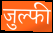
जुल्फी